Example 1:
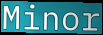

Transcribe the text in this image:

Minor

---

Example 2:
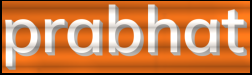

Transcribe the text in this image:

prabhat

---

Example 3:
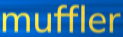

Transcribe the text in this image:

muffler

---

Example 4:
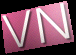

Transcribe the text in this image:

VN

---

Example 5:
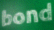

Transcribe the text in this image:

bond